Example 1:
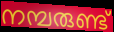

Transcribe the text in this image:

നമ്പരുണ്ട്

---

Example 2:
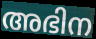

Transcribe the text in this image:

അഭിന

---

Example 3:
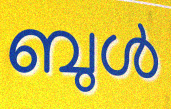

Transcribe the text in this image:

ബുൾ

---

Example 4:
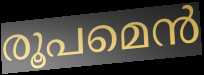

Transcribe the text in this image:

രൂപമെൻ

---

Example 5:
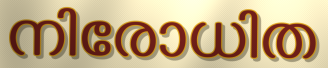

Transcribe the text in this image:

നിരോധിത